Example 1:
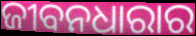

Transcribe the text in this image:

ଜୀବନଧାରାର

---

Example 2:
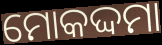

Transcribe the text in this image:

ମୋକଦ୍ଦମା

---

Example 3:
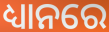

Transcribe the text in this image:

ଧ୍ୟାନରେ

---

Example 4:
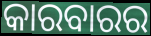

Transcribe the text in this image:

କାରବାରର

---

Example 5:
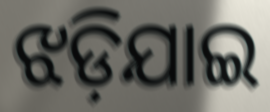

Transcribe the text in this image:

ଝଡ଼ିଯାଇ